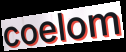
coelom